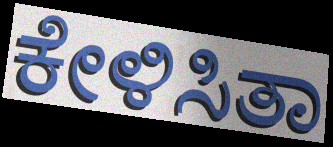
ಕೇಳಿಸಿತಾ